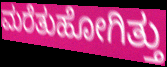
ಮರೆತುಹೋಗಿತ್ತು